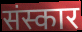
संस्कार